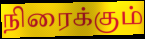
நிரைக்கும்